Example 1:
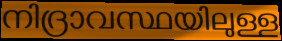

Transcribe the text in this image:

നിദ്രാവസ്ഥയിലുള്ള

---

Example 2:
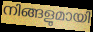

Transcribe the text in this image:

നിങ്ങളുമായി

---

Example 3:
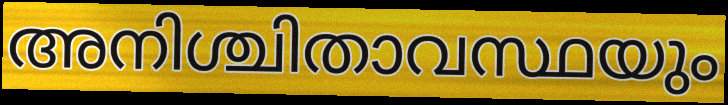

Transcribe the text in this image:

അനിശ്ചിതാവസ്ഥയും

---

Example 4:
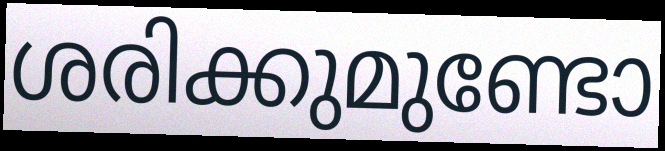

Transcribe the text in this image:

ശരിക്കുമുണ്ടോ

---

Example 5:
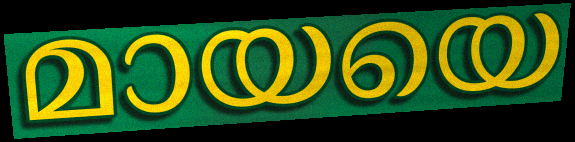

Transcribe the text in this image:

മായയെ